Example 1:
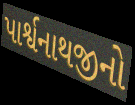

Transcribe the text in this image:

પાર્શ્વનાથજીનો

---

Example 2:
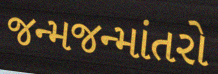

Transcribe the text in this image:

જન્મજન્માંતરો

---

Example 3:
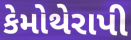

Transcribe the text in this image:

કેમોથેરાપી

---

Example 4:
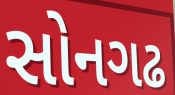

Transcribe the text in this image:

સોનગઢ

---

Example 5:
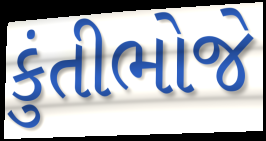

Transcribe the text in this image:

કુંતીભોજે